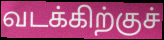
வடக்கிற்குச்